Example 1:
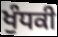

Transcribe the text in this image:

ਖੁੰਧਕੀ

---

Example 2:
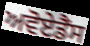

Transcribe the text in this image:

ਅਵੋਏਡੈਂਸ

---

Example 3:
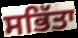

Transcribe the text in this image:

ਸਭਿੱਤਾ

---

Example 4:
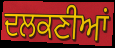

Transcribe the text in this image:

ਦਲਕਣੀਆਂ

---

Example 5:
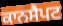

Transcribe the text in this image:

ਕਾਨਸੈਪਟ